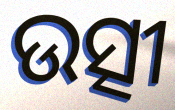
ଉତ୍ସୀ